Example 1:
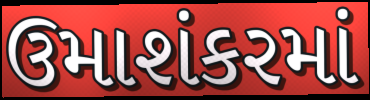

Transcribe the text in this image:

ઉમાશંકરમાં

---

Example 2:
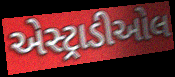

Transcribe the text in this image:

એસ્ટ્રાડીઓલ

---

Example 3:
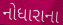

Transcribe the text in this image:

નોધારાના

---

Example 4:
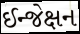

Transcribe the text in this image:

ઈન્જેક્ષન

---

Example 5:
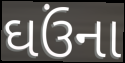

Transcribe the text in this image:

ઘઉંના